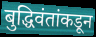
बुद्धिवंतांकडून